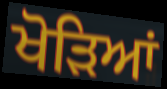
ਖੋੜਿਆਂ